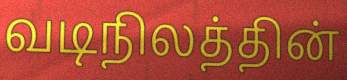
வடிநிலத்தின்